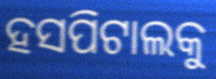
ହସପିଟାଲକୁ